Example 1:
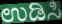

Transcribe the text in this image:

ಉಡಿಸಿ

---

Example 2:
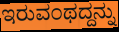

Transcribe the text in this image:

ಇರುವಂಥದ್ದನ್ನು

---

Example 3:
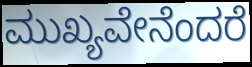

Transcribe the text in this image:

ಮುಖ್ಯವೇನೆಂದರೆ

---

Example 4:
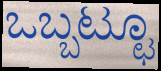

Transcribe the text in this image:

ಒಬ್ಬಟ್ಟೂ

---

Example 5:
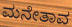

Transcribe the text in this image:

ಮನೇತಾವ